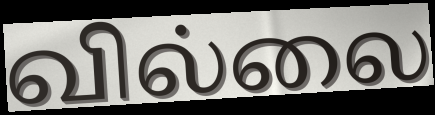
வில்லை